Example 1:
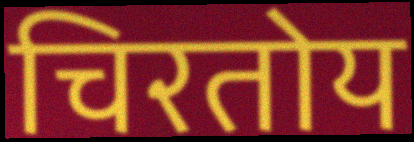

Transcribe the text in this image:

चिरतोय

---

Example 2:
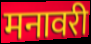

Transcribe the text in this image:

मनावरी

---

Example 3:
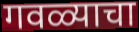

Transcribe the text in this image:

गवळ्याचा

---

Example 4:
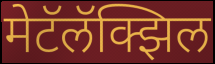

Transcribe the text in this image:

मेटॅलॅक्झिल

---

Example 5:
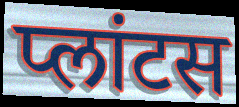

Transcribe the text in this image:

प्लांटस